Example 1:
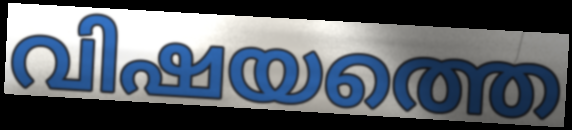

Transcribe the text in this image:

വിഷയത്തെ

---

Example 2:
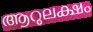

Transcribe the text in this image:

ആറുലക്ഷം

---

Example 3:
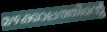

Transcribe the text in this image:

മഴക്കാലത്തിന്റെ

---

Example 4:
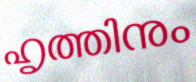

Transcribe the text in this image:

ഹൃത്തിനും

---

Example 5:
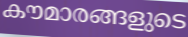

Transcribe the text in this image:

കൗമാരങ്ങളുടെ